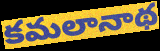
కమలానాథ